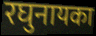
रघुनायका